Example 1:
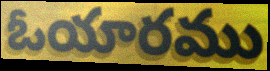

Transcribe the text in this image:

ఓయారము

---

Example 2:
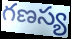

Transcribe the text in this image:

గణస్య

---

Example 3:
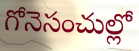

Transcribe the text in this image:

గోనెసంచుల్లో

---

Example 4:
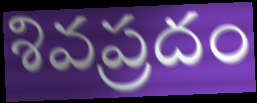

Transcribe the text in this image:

శివప్రదం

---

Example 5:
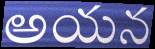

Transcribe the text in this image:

అయన